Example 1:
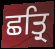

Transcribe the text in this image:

ਛਤ੍ਰਿ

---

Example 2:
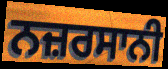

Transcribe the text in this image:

ਨਜ਼ਰਸਾਨੀ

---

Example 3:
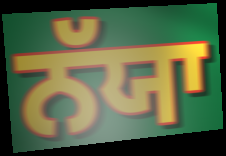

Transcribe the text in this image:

ਨੱਯਾ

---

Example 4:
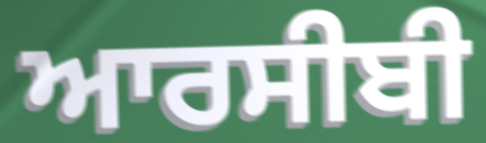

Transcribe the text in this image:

ਆਰਸੀਬੀ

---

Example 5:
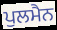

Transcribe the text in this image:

ਪੁਲਮੈਨ